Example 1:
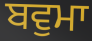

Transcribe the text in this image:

ਬਵੁਮਾ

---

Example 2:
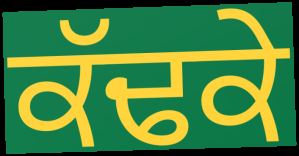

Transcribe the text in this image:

ਕੱਢਕੇ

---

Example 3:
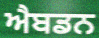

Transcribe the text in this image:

ਐਬਡਨ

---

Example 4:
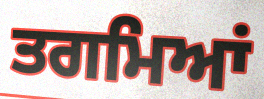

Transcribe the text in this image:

ਤਗਮਿਆਂ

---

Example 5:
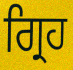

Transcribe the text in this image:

ਗ੍ਰਿਹ